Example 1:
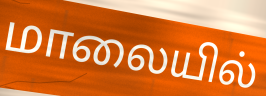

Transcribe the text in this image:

மாலையில்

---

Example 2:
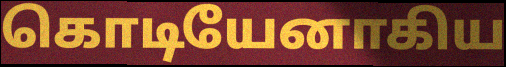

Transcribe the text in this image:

கொடியேனாகிய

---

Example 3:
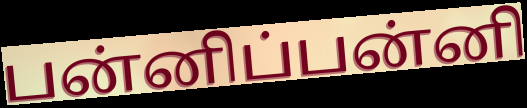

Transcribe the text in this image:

பன்னிப்பன்னி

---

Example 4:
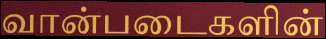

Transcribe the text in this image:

வான்படைகளின்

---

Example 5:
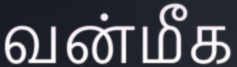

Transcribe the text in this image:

வன்மீக